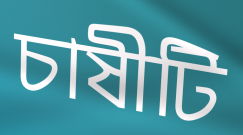
চাষীটি